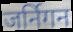
जर्निगन